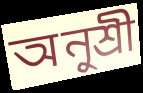
অনুশ্ৰী